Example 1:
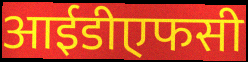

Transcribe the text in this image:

आईडीएफसी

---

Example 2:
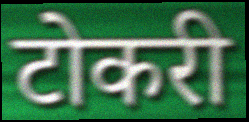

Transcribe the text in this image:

टोकरी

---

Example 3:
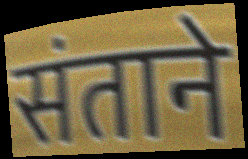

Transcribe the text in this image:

संताने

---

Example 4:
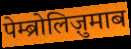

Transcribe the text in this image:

पेम्ब्रोलिज़ुमाब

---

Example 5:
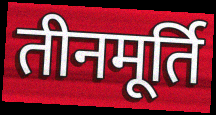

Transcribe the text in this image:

तीनमूर्ति